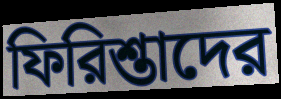
ফিরিশ্তাদের